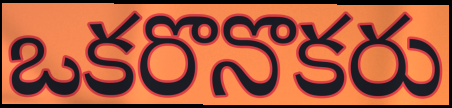
ఒకరొనొకరు